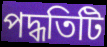
পদ্ধতিটি